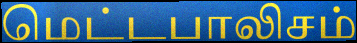
மெட்டபாலிசம்